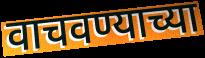
वाचवण्याच्या